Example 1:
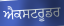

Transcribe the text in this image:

ਐਕਸਟਰੂਡਰ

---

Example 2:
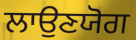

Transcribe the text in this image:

ਲਾਉਣਯੋਗ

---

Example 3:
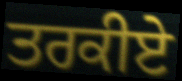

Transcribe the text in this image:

ਤਰਕੀਏ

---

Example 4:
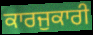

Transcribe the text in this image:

ਕਾਰਜੁਕਾਰੀ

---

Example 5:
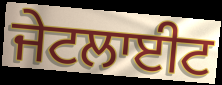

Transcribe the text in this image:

ਜੇਟਲਾਈਟ